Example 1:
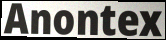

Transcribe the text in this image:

Anontex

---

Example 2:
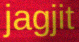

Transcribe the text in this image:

jagjit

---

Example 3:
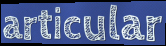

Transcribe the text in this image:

articular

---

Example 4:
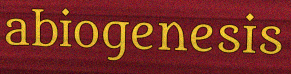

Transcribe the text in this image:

abiogenesis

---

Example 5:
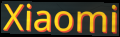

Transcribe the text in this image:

Xiaomi